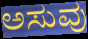
ಅಸುವು